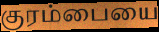
குரம்பையை